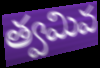
త్వమివ